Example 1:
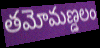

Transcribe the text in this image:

తమోమణ్డలం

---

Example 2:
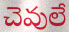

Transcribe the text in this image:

చెవులే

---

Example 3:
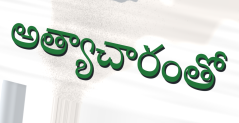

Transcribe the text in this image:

అత్యాచారంతో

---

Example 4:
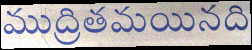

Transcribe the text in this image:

ముద్రితమయినది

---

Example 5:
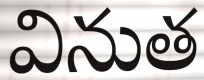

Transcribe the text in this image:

వినుత